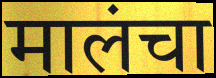
मालंचा